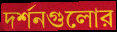
দর্শনগুলোর